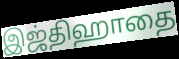
இஜ்திஹாதை